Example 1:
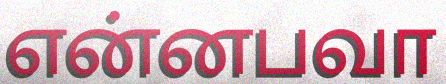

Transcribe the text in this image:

என்னபவா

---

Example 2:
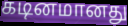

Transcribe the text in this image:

கடினமானது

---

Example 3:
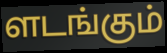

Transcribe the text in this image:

ளடங்கும்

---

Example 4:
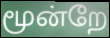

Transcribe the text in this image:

மூன்றே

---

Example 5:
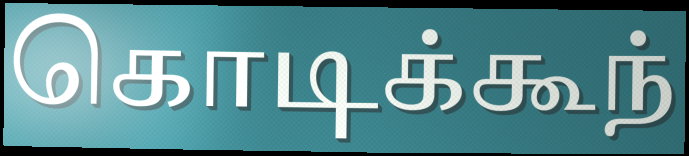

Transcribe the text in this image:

கொடிக்கூந்